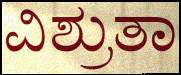
ವಿಶ್ರುತಾ